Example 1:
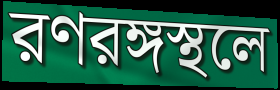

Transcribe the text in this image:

রণরঙ্গস্থলে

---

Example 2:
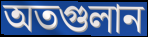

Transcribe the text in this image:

অতগুলান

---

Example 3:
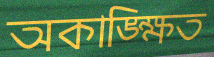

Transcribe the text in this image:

অকাঙ্ক্ষিত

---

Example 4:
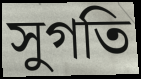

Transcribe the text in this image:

সুগতি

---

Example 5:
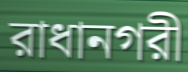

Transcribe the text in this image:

রাধানগরী